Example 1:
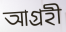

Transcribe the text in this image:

আগ্রহী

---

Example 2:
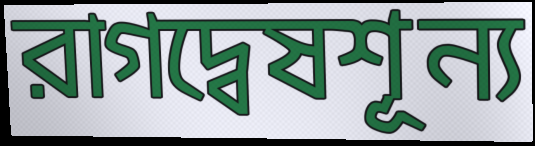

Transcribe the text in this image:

রাগদ্বেষশূন্য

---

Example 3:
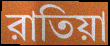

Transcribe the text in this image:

রাতিয়া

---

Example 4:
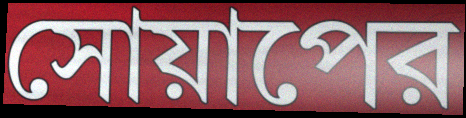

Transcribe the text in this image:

সোয়াপের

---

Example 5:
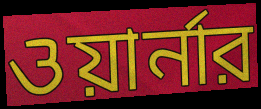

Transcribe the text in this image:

ওয়ার্নার